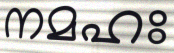
നമഹഃ